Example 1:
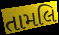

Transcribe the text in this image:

તામલિ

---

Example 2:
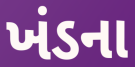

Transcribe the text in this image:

ખંડના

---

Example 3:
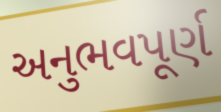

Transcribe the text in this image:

અનુભવપૂર્ણ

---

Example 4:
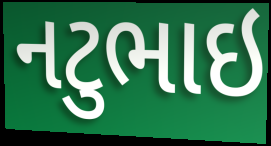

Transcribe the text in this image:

નટુભાઇ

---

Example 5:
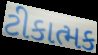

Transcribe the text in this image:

ટીકાત્મક